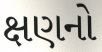
ક્ષણનો